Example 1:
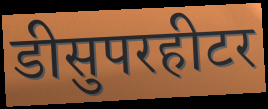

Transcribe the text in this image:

डीसुपरहीटर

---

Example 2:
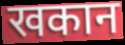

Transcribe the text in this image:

खकान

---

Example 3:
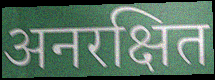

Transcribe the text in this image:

अनरक्षित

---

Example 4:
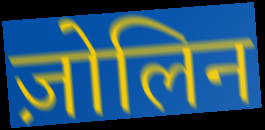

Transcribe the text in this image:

ज़ोलिन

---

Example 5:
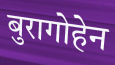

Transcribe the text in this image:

बुरागोहेन